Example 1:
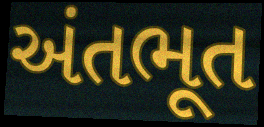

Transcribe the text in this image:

અંતભૂત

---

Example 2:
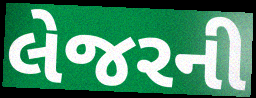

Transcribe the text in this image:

લેજરની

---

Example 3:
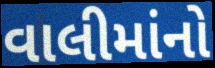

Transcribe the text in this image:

વાલીમાંનો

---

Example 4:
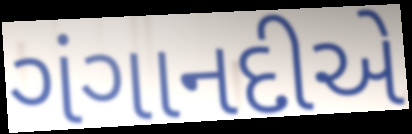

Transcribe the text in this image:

ગંગાનદીએ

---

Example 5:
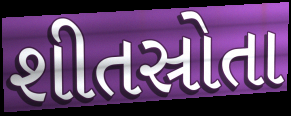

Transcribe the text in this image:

શીતસ્રોતા